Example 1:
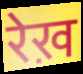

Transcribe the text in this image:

रेख़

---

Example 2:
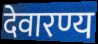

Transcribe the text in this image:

देवारण्य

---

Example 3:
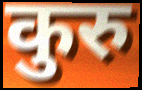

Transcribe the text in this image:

कुरु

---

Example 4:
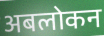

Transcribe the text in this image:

अबलोकन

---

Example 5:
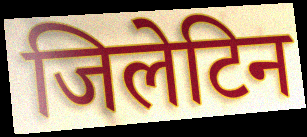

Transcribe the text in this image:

जिलेटिन